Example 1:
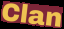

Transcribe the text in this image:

Clan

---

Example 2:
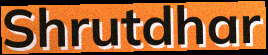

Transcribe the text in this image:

Shrutdhar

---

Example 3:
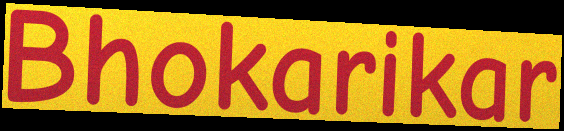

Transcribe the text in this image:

Bhokarikar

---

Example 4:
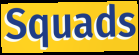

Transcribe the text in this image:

Squads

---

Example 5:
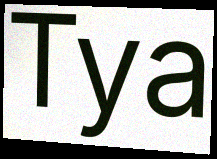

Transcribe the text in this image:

Tya